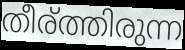
തീര്ത്തിരുന്ന